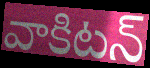
వాకిటన్